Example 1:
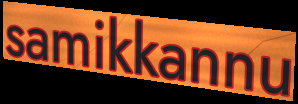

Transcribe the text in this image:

samikkannu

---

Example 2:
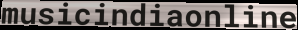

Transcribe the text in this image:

musicindiaonline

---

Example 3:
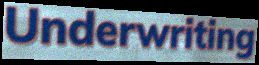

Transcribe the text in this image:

Underwriting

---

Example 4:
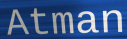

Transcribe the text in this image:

Atman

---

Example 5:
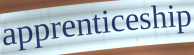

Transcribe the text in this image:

apprenticeship